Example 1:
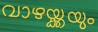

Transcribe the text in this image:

വാഴയ്ക്കയും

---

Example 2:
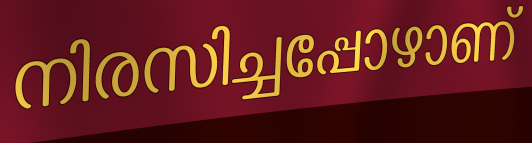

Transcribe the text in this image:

നിരസിച്ചപ്പോഴാണ്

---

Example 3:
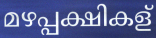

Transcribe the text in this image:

മഴപ്പക്ഷികള്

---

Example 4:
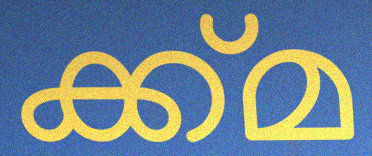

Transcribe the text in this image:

ക്ക്മ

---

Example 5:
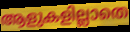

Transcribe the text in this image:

ആളുകളില്ലാതെ